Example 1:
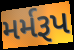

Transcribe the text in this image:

મર્મરૂપ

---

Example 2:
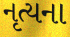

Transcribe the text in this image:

નૃત્યના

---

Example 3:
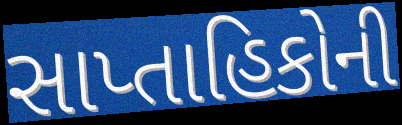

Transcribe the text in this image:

સાપ્તાહિકોની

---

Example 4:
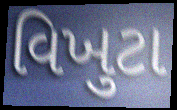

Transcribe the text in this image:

વિખુટા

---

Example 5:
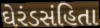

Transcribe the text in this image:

ઘેરંડસંહિતા